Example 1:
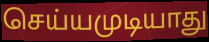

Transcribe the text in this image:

செய்யமுடியாது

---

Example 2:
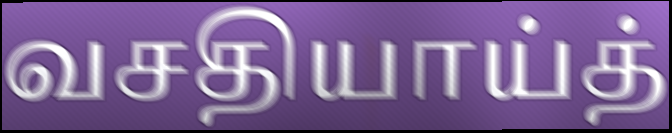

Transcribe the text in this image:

வசதியாய்த்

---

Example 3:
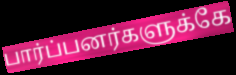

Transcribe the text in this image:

பார்ப்பனர்களுக்கே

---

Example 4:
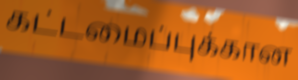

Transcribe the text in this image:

கட்டமைப்புக்கான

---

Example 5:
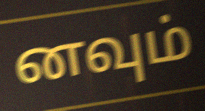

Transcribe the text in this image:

னவும்